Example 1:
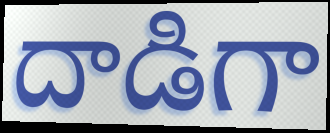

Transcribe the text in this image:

దాడిగా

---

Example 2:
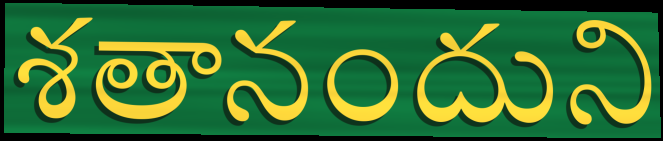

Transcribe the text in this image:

శతానందుని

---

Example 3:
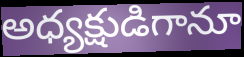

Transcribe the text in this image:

అధ్యక్షుడిగానూ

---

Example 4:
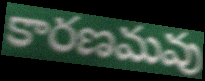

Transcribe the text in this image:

కారణమవు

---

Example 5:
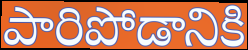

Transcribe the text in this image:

పారిపోడానికి